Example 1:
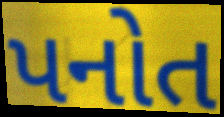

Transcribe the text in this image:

પનોત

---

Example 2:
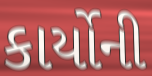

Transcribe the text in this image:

કાર્યોની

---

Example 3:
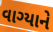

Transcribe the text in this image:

વાગ્યાને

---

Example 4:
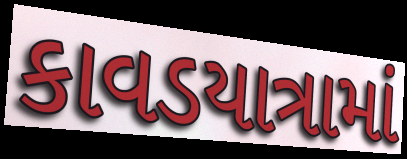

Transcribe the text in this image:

કાવડયાત્રામાં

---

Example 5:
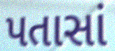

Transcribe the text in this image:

પતાસાં